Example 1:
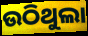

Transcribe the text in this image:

ଉଠିଥୁଲା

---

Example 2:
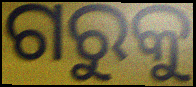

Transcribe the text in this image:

ଗରୁକୁ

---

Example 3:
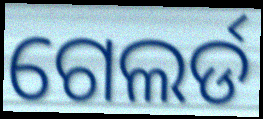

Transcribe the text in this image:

ଗେଲର୍ଡ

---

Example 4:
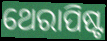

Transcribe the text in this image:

ଥେରାପିଷ୍ଟ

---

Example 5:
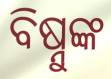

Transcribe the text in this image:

ବିଷ୍ନୁଙ୍କ